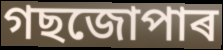
গছজোপাৰ